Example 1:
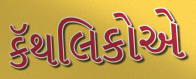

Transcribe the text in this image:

કૅથલિકોએ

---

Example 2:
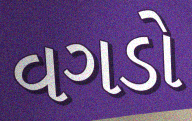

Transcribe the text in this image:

વગડો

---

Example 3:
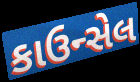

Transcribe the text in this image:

કાઉન્સેલ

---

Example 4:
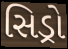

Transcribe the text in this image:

સિડ્રો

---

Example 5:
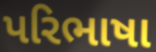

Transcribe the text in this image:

પરિભાષા